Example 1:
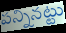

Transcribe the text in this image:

పన్నినట్టు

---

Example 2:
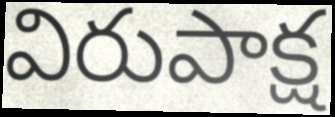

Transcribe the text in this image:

విరుపాక్ష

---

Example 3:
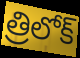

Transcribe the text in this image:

త్రిలోక్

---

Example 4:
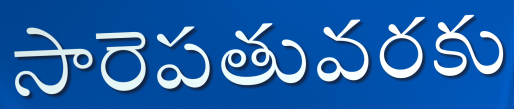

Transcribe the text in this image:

సారెపతువరకు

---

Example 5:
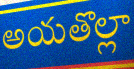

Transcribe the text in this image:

అయతొల్లా